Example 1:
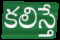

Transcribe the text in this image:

కలిస్తే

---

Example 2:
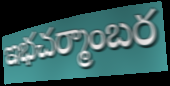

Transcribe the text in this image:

ఇభచర్మాంబర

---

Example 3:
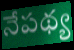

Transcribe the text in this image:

నేపథ్య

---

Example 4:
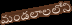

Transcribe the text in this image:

మండలాలలోని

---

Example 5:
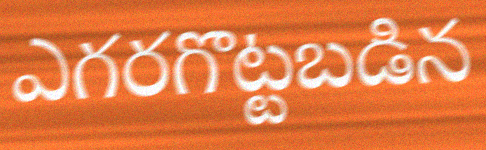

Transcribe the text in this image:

ఎగరగొట్టబడిన